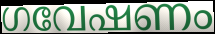
ഗവേഷണം